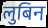
लुबिन